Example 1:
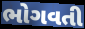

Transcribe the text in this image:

ભોગવતી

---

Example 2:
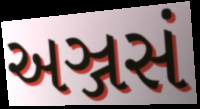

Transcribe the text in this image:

અઞ્જસં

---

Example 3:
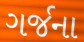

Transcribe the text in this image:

ગર્જના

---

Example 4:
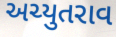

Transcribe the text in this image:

અચ્યુતરાવ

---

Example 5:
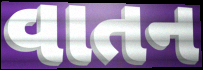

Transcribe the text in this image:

વાતન